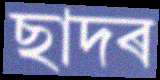
ছাদৰ